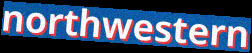
northwestern